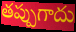
తప్పుగాదు